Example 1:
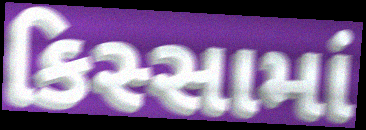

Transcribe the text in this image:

કિસ્સામાં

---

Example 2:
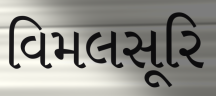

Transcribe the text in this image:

વિમલસૂરિ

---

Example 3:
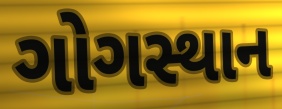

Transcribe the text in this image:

ગોગસ્થાન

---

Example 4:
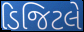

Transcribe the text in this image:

ડિજિટલે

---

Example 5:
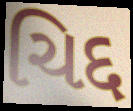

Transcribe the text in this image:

ચિદ્દ